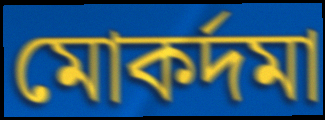
মোকৰ্দমা